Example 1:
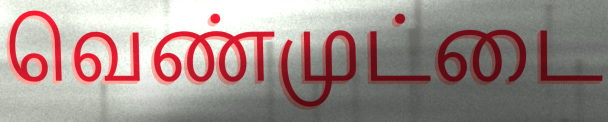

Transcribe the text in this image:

வெண்முட்டை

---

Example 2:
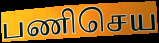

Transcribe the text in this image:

பணிசெய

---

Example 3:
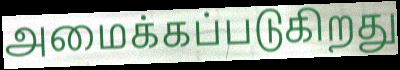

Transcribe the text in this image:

அமைக்கப்படுகிறது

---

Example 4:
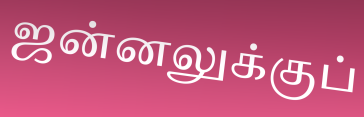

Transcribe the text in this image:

ஜன்னலுக்குப்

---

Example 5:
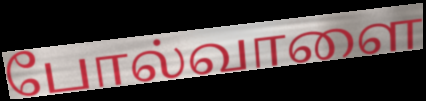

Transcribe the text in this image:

போல்வாளை